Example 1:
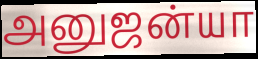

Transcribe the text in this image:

அனுஜன்யா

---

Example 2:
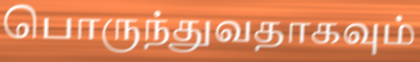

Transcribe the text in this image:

பொருந்துவதாகவும்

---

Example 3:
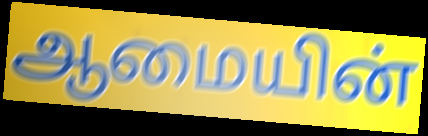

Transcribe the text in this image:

ஆமையின்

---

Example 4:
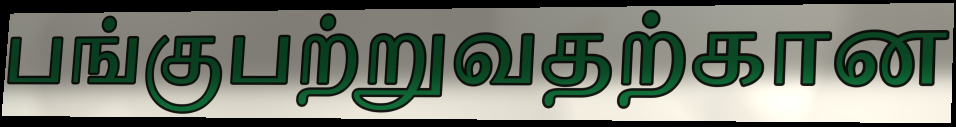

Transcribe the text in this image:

பங்குபற்றுவதற்கான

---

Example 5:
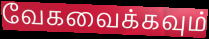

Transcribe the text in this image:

வேகவைக்கவும்